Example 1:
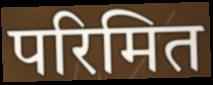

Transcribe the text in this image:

परिमित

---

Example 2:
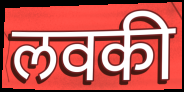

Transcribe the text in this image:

लवकी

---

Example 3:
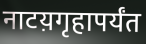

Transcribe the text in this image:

नाटय़गृहापर्यंत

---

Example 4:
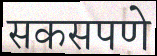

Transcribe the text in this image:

सकसपणे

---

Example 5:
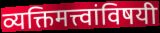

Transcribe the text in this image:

व्यक्तिमत्त्वांविषयी